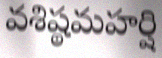
వశిష్ఠమహర్షి